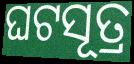
ଘଟସୂତ୍ର